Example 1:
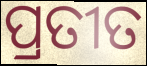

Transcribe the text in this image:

ପ୍ରତୀତ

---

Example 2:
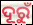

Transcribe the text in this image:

ଦୂରୁଁ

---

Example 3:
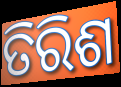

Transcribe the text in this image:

ତିରିଶ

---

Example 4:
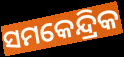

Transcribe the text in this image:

ସମକେନ୍ଦ୍ରିକ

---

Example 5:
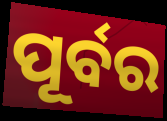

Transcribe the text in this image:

ପୂର୍ବର